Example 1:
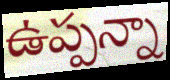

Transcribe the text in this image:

ఉప్పన్నా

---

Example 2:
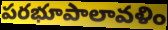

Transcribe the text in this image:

పరభూపాలావళిం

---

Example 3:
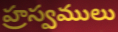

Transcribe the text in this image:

హ్రస్వములు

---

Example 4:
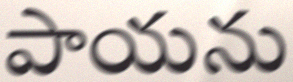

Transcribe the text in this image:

పాయను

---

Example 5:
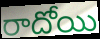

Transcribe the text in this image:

రాదోయి